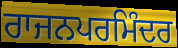
ਰਾਜਨਪਰਮਿੰਦਰ